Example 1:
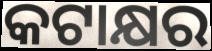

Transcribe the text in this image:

କଟାକ୍ଷର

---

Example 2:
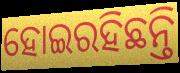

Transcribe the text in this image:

ହୋଇରହିଛନ୍ତି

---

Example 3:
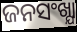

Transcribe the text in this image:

ଜନସଂଖ୍ଯା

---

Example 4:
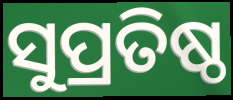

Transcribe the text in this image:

ସୁପ୍ରତିଷ୍ଠ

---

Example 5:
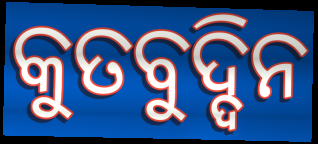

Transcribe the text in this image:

କୁତବୁଦ୍ଦିନ